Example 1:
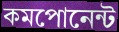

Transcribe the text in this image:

কমপোনেন্ট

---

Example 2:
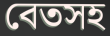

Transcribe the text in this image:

বেতসহ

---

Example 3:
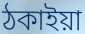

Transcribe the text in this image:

ঠকাইয়া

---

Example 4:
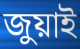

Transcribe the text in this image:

জুয়াই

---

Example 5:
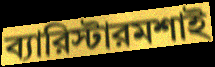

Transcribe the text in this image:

ব্যারিস্টারমশাই